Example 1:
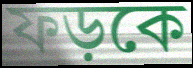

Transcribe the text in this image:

ফড়কে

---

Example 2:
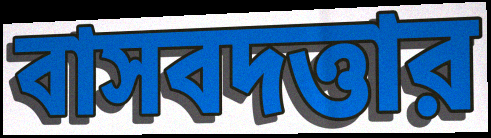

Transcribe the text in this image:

বাসবদত্তার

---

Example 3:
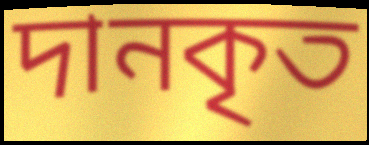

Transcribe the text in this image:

দানকৃত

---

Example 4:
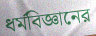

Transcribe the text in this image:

ধর্মবিজ্ঞানের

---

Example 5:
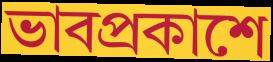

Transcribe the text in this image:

ভাবপ্রকাশে